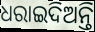
ଧରାଇଦିଅନ୍ତି